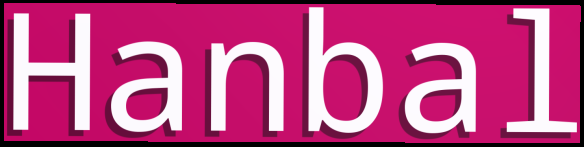
Hanbal